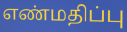
எண்மதிப்பு